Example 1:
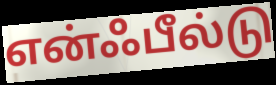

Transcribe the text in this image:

என்ஃபீல்டு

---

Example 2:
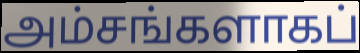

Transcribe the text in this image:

அம்சங்களாகப்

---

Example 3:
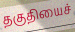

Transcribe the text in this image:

தகுதியைச்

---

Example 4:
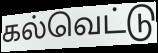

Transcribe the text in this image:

கல்வெட்டு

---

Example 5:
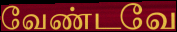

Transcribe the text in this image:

வேண்டவே